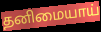
தனிமையாய்